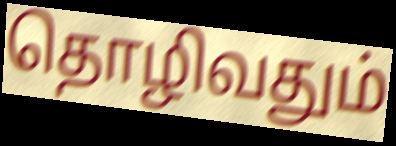
தொழிவதும்